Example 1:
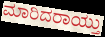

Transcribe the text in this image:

ಮಾರಿದರಾಯ್ತು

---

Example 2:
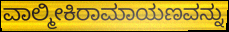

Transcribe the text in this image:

ವಾಲ್ಮೀಕಿರಾಮಾಯಣವನ್ನು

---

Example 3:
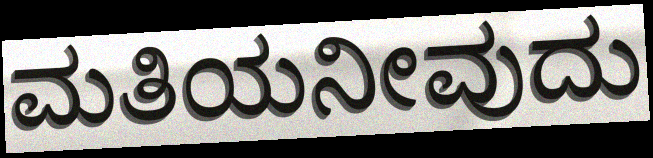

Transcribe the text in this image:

ಮತಿಯನೀವುದು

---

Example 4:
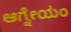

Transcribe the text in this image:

ಆಗ್ನೇಯಂ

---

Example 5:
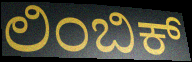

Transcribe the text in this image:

ಲಿಂಬಿಕ್